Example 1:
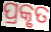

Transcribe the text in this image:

ପ୍ରକୃତ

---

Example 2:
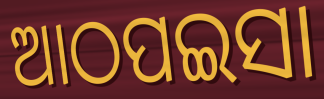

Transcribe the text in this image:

ଆଠପଇସା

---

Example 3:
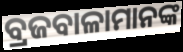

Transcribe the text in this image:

ବ୍ରଜବାଳାମାନଙ୍କ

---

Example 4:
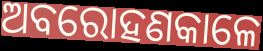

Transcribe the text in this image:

ଅବରୋହଣକାଳେ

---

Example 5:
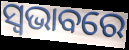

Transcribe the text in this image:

ସ୍ବଭାବରେ